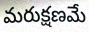
మరుక్షణమే